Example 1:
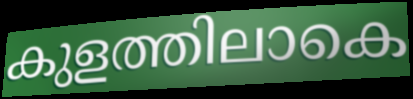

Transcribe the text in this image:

കുളത്തിലാകെ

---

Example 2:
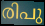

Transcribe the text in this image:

രിപു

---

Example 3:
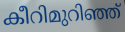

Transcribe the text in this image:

കീറിമുറിഞ്ഞ്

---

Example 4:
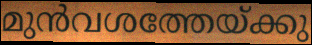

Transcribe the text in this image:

മുൻവശത്തേയ്ക്കു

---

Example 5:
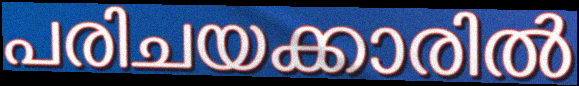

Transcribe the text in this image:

പരിചയക്കാരിൽ